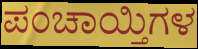
ಪಂಚಾಯ್ತಿಗಳ